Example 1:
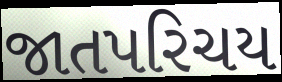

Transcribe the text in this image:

જાતપરિચય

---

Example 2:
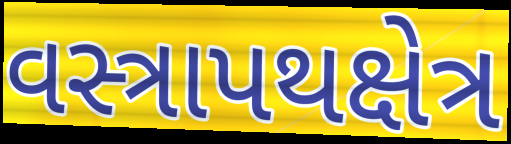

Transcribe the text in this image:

વસ્ત્રાપથક્ષેત્ર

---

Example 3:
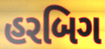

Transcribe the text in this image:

હરબિગ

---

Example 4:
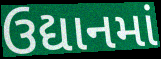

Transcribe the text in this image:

ઉદ્યાનમાં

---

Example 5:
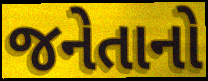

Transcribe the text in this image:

જનેતાનો